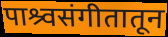
पाश्र्वसंगीतातून